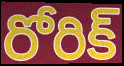
రోరిక్